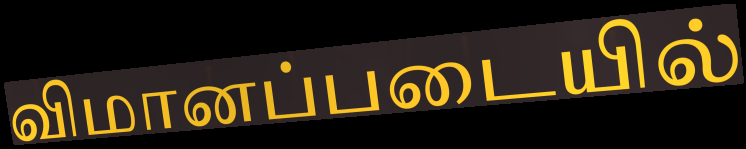
விமானப்படையில்